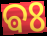
ଵଃ